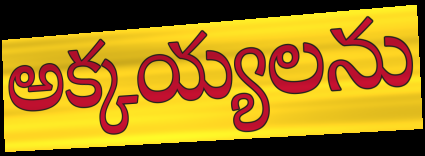
అక్కయ్యలను